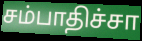
சம்பாதிச்சா